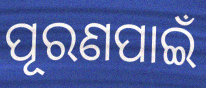
ପୂରଣପାଇଁ